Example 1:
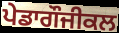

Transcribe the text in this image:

ਪੇਡਾਗੌਜੀਕਲ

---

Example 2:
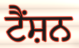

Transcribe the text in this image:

ਟੈਂਸ਼ਨ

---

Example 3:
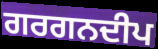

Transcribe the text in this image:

ਗਰਗਨਦੀਪ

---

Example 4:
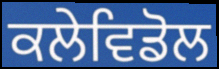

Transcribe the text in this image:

ਕਲੇਵਿਡੋਲ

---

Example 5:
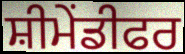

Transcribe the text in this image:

ਸ਼ੀਮੇਂਡੀਫਰ